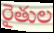
రైతుల